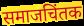
समाजचिंतक